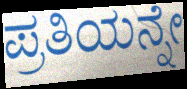
ಪ್ರತಿಯನ್ನೇ